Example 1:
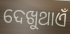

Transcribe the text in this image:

ଦେଖୁଥାଏଁ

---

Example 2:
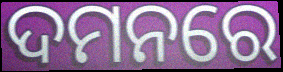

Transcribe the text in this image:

ଦମନରେ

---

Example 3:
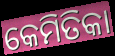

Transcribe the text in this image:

କେମିତିକା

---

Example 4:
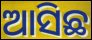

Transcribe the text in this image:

ଆସିଛ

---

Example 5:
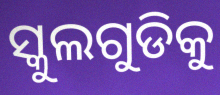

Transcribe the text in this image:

ସ୍କୁଲଗୁଡିକୁ